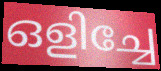
ഒളിച്ചേ